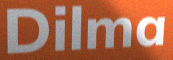
Dilma